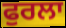
ਫੁਰਲਾ